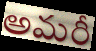
అమరీ